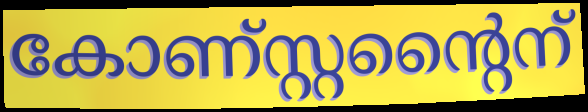
കോണ്സ്റ്റന്റൈന്